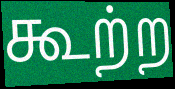
கூற்ற